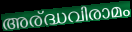
അര്ദ്ധവിരാമം